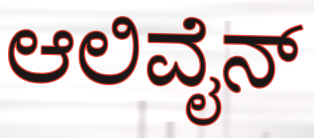
ಆಲಿವೈನ್